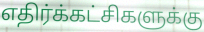
எதிர்க்கட்சிகளுக்கு